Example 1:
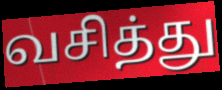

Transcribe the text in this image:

வசித்து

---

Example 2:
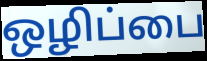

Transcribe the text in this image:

ஒழிப்பை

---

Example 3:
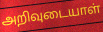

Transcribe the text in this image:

அறிவுடையாள்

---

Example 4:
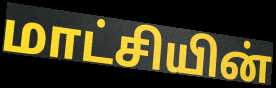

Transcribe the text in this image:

மாட்சியின்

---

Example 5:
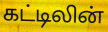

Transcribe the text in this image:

கட்டிலின்